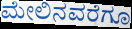
ಮೇಲಿನವರೆಗೂ